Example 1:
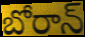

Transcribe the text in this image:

బోరాన్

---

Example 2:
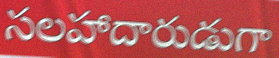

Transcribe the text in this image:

సలహాదారుడుగా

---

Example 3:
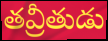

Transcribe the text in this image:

తవ్రీతుడు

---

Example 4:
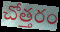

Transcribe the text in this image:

చోత్తరం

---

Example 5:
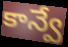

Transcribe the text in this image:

కాన్వే